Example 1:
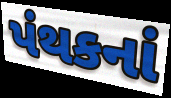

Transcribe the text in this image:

પંથકનાં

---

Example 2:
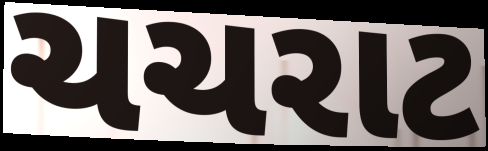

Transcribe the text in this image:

ચચરાટ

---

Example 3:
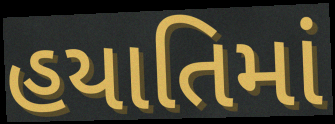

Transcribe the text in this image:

હયાતિમાં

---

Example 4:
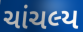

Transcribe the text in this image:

ચાંચલ્ય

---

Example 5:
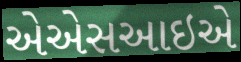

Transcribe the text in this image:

એએસઆઇએ